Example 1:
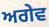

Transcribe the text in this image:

ਅਗੇਵ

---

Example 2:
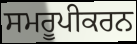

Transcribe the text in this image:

ਸਮਰੂਪੀਕਰਨ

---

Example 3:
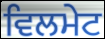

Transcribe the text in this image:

ਵਿਲਮੇਟ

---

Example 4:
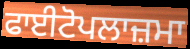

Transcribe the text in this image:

ਫਾਈਟੋਪਲਾਜ਼ਮਾ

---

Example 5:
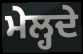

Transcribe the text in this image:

ਮੇਲ੍ਹਦੇ